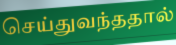
செய்துவந்ததால்